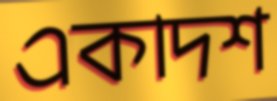
একাদশ